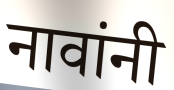
नावांनी